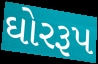
ઘોરરૂપ